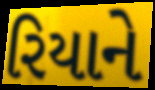
રિયાને